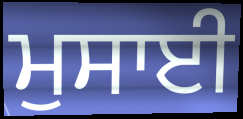
ਮੁਸਾਈ